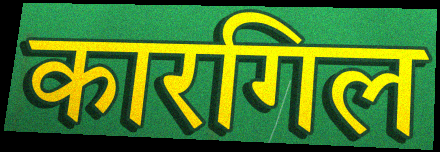
कारगिल